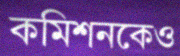
কমিশনকেও